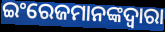
ଇଂରେଜମାନଙ୍କଦ୍ୱାରା